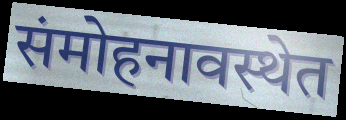
संमोहनावस्थेत